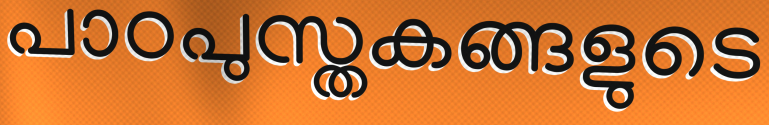
പാഠപുസ്തകങ്ങളുടെ